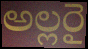
అల్లరై